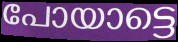
പോയാട്ടെ